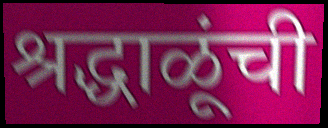
श्रद्धाळूंची